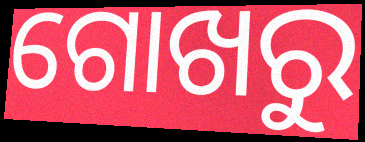
ଗୋଖରୁ